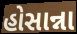
હોસાન્ના